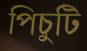
পিচুটি